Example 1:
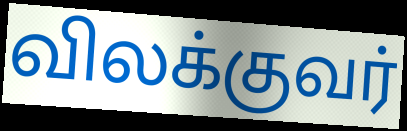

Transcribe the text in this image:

விலக்குவர்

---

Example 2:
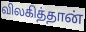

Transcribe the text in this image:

விலகித்தான்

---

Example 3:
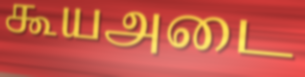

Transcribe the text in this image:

கூயஅடை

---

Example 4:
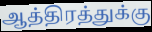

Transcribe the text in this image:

ஆத்திரத்துக்கு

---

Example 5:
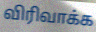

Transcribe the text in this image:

விரிவாக்க